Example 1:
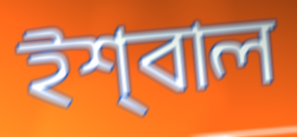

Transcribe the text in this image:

ইশ্‌বাল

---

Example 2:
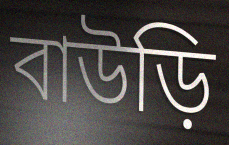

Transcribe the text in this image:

বাউড়ি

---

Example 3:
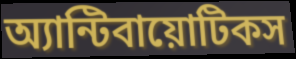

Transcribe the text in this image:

অ্যান্টিবায়োটিকস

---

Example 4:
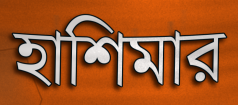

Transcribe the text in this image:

হাশিমার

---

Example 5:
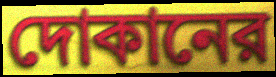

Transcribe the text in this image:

দোকানের